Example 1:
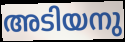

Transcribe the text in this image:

അടിയനു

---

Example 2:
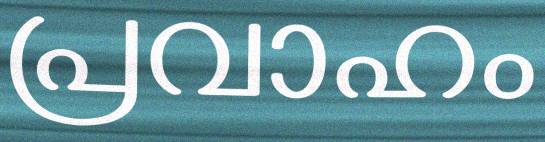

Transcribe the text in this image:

പ്രവാഹം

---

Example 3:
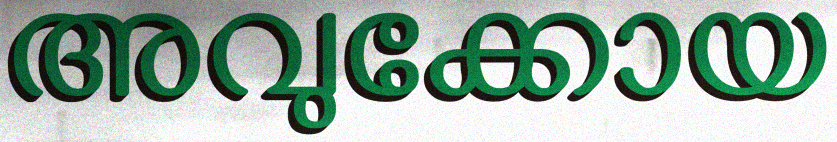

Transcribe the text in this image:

അവുക്കോയ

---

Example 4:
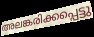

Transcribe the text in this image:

അലങ്കരിക്കപ്പെട്ടു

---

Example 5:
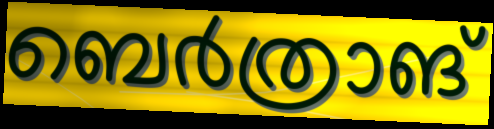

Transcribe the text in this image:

ബെർത്രാങ്